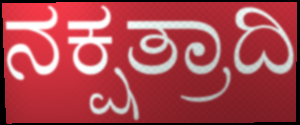
ನಕ್ಷತ್ರಾದಿ